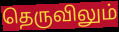
தெருவிலும்